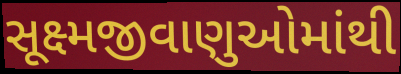
સૂક્ષ્મજીવાણુઓમાંથી